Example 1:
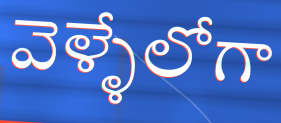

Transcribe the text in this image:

వెళ్ళేలోగా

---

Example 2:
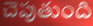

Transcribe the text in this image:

చెపుతుంది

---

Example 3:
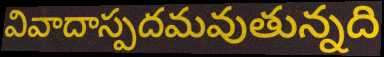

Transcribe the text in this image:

వివాదాస్పదమవుతున్నది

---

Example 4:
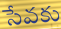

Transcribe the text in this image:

సేవకు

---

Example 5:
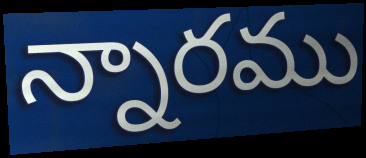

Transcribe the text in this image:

న్నారము